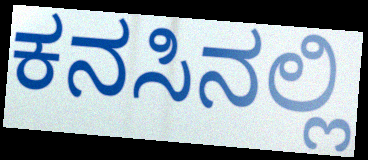
ಕನಸಿನಲ್ಲಿ